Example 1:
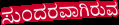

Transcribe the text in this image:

ಸುಂದರವಾಗಿರುವ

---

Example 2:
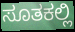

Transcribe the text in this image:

ಸೂತಕಲ್ಲಿ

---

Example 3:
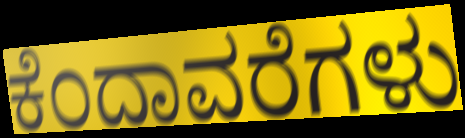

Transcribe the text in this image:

ಕೆಂದಾವರೆಗಳು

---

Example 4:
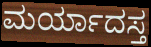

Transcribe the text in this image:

ಮರ್ಯಾದಸ್ತ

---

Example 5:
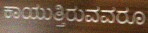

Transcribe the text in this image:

ಕಾಯುತ್ತಿರುವವರೂ